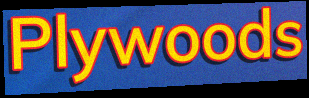
Plywoods